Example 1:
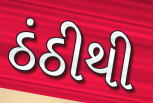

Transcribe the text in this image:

ઠંઠીથી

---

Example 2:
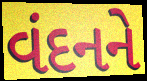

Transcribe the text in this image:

વંદનને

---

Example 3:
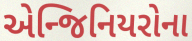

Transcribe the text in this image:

એન્જિનિયરોના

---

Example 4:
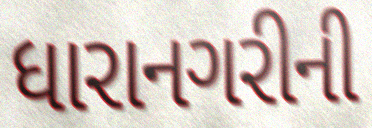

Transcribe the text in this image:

ધારાનગરીની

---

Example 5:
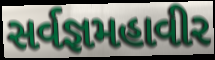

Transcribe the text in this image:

સર્વજ્ઞમહાવીર